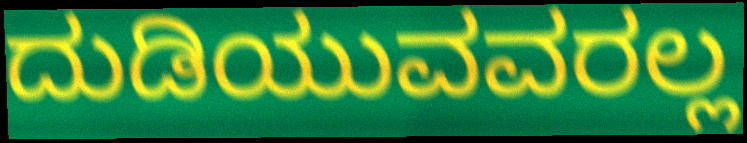
ದುಡಿಯುವವರಲ್ಲ